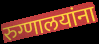
रुग्णालयांना